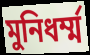
মুনিধর্ম্ম